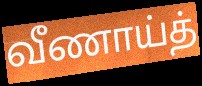
வீணாய்த்